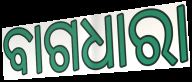
ବାଗଧାରା